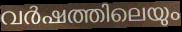
വർഷത്തിലെയും